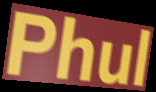
Phul